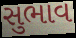
સુભાવ